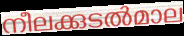
നീലക്കുടൽമാല